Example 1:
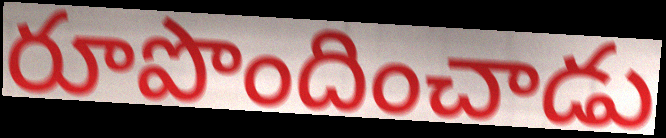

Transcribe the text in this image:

రూపొందించాడు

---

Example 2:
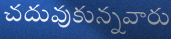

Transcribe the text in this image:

చదువుకున్నవారు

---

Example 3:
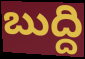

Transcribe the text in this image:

బుద్ది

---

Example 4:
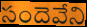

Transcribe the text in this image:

సందెవేని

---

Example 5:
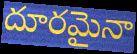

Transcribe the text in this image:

దూరమైనా